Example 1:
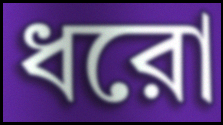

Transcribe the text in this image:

ধরো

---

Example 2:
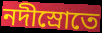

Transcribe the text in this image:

নদীস্রোতে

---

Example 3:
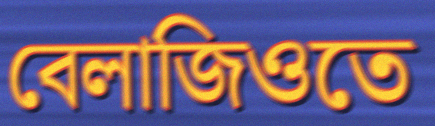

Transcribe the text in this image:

বেলাজিওতে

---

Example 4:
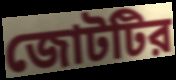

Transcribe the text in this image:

জোটটির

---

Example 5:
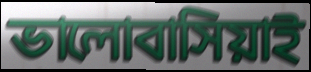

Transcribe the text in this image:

ভালোবাসিয়াই